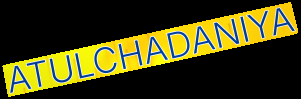
ATULCHADANIYA